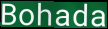
Bohada